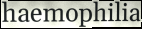
haemophilia